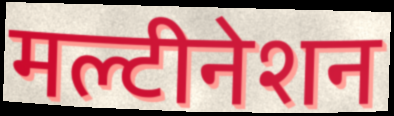
मल्टीनेशन